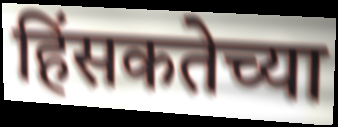
हिंसकतेच्या